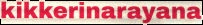
kikkerinarayana